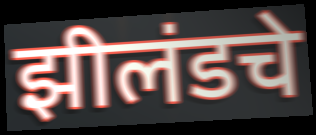
झीलंडचे